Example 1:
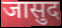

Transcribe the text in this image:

जासुद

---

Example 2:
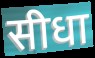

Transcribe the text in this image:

सीधा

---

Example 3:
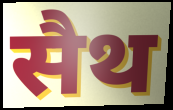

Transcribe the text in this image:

सैथ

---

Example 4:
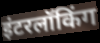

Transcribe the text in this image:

इंटरलॉकिंग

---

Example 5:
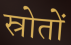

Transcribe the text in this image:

स्रोतों